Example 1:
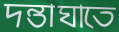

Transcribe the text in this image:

দন্তাঘাতে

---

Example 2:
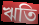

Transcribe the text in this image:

ঋতি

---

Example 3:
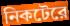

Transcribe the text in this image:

নিকটেরে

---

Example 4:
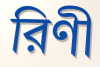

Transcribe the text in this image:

রিণী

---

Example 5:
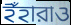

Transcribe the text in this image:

ইঁহারাও